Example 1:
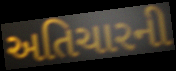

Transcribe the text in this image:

અતિચારની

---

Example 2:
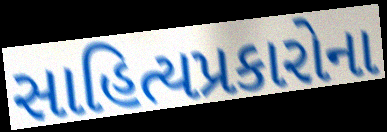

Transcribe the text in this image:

સાહિત્યપ્રકારોના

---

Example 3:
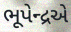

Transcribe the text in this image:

ભૂપેન્દ્રએ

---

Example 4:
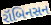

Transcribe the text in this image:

રૉબિનસન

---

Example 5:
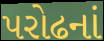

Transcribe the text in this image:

પરોઢનાં